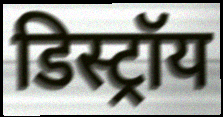
डिस्ट्रॉय